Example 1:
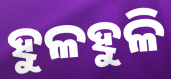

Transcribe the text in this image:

ହୁଳହୁଳି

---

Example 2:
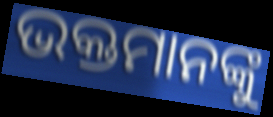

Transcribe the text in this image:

ଭକ୍ତମାନଙ୍କୁ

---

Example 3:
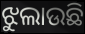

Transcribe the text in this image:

ଝୁଲାଉଛି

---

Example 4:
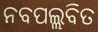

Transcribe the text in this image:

ନବପଲ୍ଲବିତ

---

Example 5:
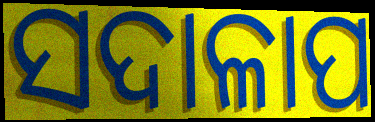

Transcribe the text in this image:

ସଦାଳାପ